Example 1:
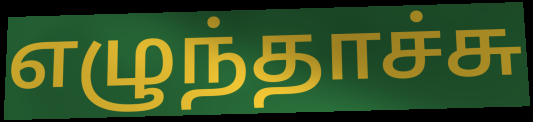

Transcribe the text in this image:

எழுந்தாச்சு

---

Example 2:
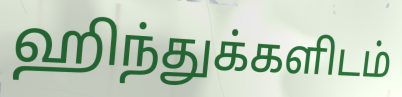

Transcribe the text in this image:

ஹிந்துக்களிடம்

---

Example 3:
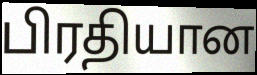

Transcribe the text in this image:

பிரதியான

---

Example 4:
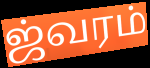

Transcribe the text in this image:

ஜ்வரம்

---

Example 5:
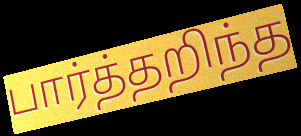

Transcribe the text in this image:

பார்த்தறிந்த